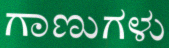
ಗಾಣುಗಳು